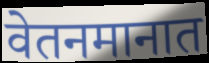
वेतनमानात